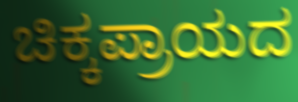
ಚಿಕ್ಕಪ್ರಾಯದ